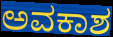
ಅವಕಾಶ